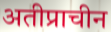
अतीप्राचीन